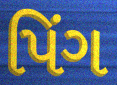
પિંગ